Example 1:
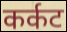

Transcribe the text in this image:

कर्कट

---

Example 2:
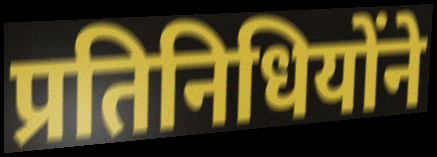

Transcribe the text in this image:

प्रतिनिधियोंने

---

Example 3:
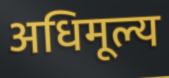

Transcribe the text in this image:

अधिमूल्य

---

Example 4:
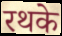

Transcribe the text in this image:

रथके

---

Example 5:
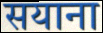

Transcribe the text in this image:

सयाना